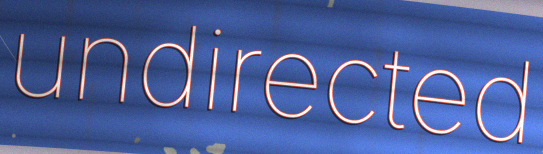
undirected